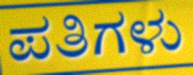
ಪತಿಗಳು